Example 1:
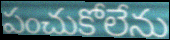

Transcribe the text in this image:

పంచుకోలేను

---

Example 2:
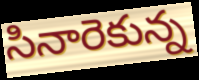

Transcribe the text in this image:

సినారెకున్న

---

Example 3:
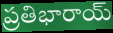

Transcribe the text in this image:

ప్రతిభారాయ్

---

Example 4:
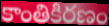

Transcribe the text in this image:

కాంతికిరణం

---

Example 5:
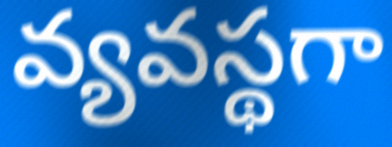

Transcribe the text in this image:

వ్యవస్థగా